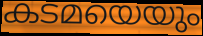
കടമയെയും